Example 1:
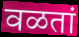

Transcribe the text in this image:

वळतां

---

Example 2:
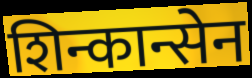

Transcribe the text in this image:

शिन्कान्सेन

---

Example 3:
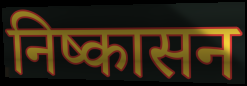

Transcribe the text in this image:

निष्कासन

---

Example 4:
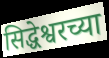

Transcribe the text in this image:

सिद्धेश्वरच्या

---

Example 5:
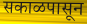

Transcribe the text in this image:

सकाळपासून